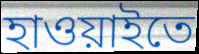
হাওয়াইতে